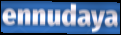
ennudaya